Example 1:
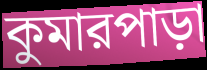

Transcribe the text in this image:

কুমারপাড়া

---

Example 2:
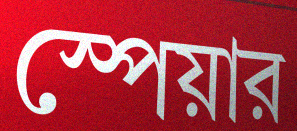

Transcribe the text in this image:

স্পেয়ার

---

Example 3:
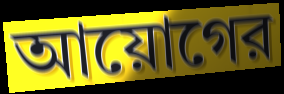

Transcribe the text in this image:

আয়োগের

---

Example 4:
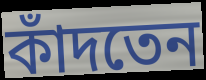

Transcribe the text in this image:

কাঁদতেন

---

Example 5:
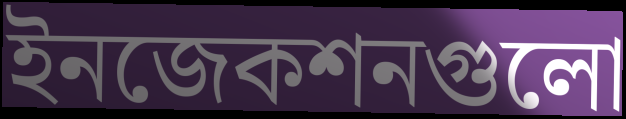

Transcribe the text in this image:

ইনজেকশনগুলো